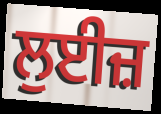
ਲੁਈਜ਼